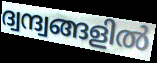
ദ്വന്ദ്വങ്ങളിൽ